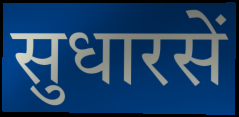
सुधारसें